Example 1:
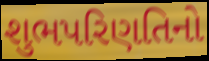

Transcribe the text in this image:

શુભપરિણતિનો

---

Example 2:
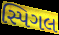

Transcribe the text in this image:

સ્પિગલ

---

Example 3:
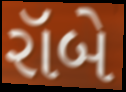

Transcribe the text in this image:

રૉબે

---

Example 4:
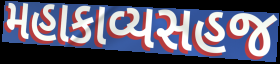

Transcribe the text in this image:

મહાકાવ્યસહજ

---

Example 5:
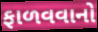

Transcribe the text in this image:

ફાળવવાનો